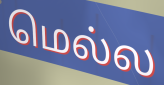
மெல்ல